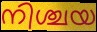
നിശ്ചയ